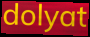
dolyat